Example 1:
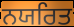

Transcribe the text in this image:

ਨਯਰਿਤ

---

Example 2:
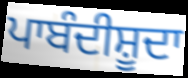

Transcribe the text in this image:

ਪਾਬੰਦੀਸ਼ੂਦਾ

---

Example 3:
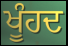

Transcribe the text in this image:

ਖੂੰਹਦ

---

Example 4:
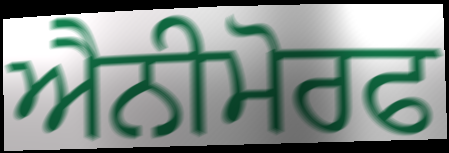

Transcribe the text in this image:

ਐਨੀਮੋਰਫ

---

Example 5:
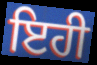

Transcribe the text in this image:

ਇਹੀ